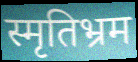
स्मृतिभ्रम